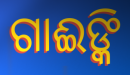
ଗାଈଙ୍କି